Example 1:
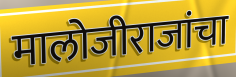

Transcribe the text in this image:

मालोजीराजांचा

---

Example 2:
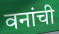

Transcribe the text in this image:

वनांची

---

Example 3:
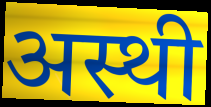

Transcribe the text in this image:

अस्थी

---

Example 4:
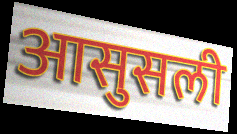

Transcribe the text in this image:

आसुसली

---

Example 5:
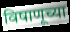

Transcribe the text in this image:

विषाणूच्या